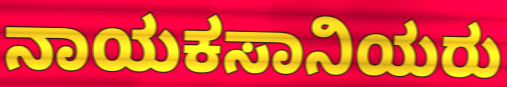
ನಾಯಕಸಾನಿಯರು